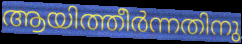
ആയിത്തീർന്നതിനു